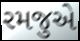
રમજુએ